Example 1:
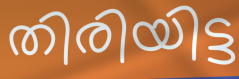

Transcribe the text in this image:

തിരിയിട്ട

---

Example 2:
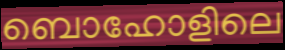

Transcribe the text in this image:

ബൊഹോളിലെ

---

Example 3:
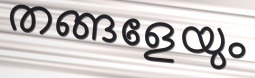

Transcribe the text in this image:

തങ്ങളേയും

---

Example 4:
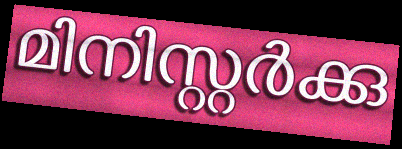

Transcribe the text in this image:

മിനിസ്റ്റർക്കു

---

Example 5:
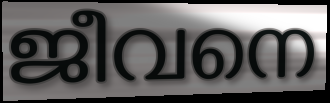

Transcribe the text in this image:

ജീവനെ